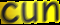
cun